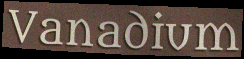
Vanadium